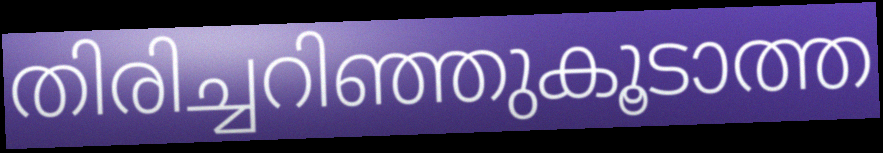
തിരിച്ചറിഞ്ഞുകൂടാത്ത